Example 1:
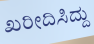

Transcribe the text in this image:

ಖರೀದಿಸಿದ್ದು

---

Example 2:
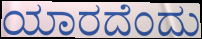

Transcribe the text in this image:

ಯಾರದೆಂದು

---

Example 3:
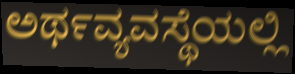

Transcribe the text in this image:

ಅರ್ಥವ್ಯವಸ್ಥೆಯಲ್ಲಿ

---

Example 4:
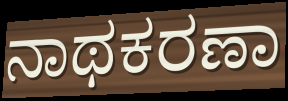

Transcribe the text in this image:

ನಾಥಕರಣಾ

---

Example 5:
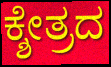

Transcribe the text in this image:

ಕ್ಶೇತ್ರದ